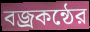
বজ্রকন্ঠের